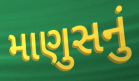
માણુસનું